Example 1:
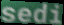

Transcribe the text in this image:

sedi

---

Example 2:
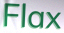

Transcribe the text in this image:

Flax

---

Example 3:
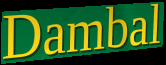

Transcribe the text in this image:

Dambal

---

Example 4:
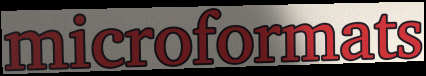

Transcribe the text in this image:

microformats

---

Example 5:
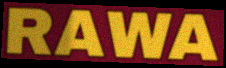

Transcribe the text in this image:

RAWA